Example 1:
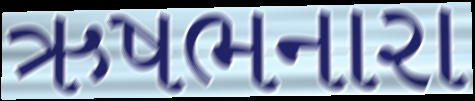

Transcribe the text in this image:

ઋષભનારા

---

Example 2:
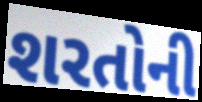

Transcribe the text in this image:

શરતોની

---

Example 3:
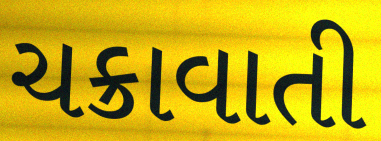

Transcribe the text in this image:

ચક્રાવાતી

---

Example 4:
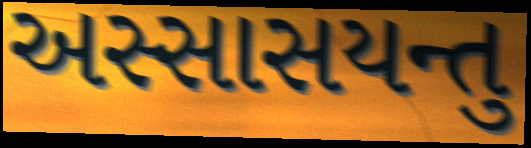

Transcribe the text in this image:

અસ્સાસયન્તુ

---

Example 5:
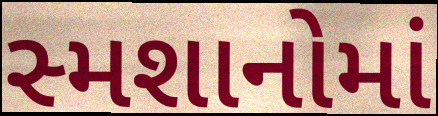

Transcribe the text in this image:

સ્મશાનોમાં